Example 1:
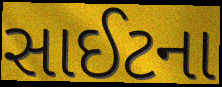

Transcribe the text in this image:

સાઈટના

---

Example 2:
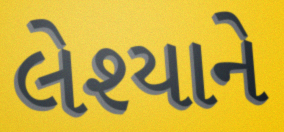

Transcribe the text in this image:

લેશ્યાને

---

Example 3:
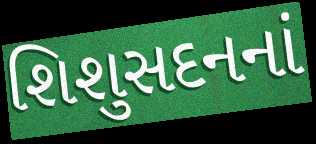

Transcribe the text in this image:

શિશુસદનનાં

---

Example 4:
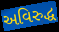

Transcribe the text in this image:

અવિરુદ્ધ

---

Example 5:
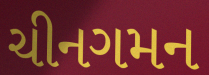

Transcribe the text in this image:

ચીનગમન